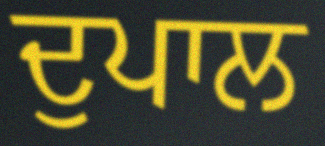
ਦੁਪਾਲ